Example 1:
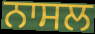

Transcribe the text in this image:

ਨਾਸਲ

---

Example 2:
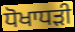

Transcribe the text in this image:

ਧੋਖਾਧਡ਼ੀ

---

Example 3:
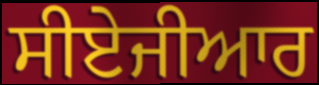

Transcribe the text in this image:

ਸੀਏਜੀਆਰ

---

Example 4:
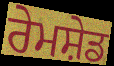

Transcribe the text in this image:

ਰੇਮਸ਼ੇਡ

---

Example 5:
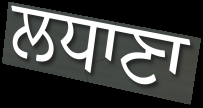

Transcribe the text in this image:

ਲਧਾਣਾ